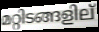
മറ്റിടങ്ങളില്